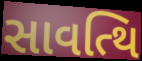
સાવત્થિ